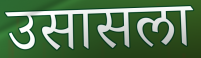
उसासला